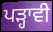
ਪੜ੍ਹਾਵੀ